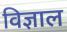
विज्ञाल